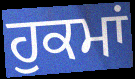
ਹੁਕਮਾਂ